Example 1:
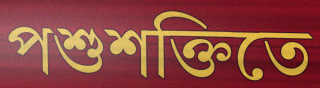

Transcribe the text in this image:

পশুশক্তিতে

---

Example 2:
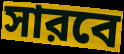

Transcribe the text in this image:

সারবে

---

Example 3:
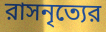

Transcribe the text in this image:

রাসনৃত্যের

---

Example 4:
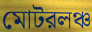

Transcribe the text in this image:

মোটরলঞ্চ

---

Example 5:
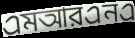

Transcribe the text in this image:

এমআরএনএ